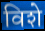
विशे